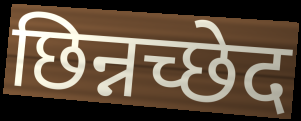
छिन्नच्छेद